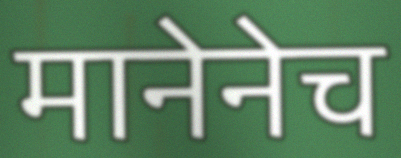
मानेनेच